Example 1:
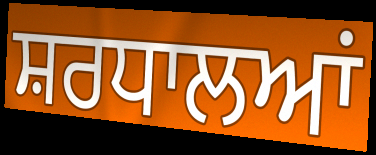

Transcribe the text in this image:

ਸ਼ਰਧਾਲਆਂ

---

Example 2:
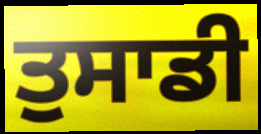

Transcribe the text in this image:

ਤੁਸਾਡੀ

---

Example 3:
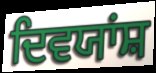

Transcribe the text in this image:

ਦਿਵਯਾਂਸ਼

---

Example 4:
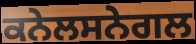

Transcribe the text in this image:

ਕਨੇਲਸਨੇਗਲ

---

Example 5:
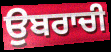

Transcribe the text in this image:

ਉਬਰਾਚੀ